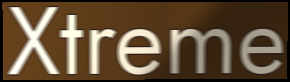
Xtreme